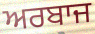
ਅਰਬਾਜ